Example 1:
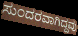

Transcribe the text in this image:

ಸುಂದರವಾಗಿದ್ದವು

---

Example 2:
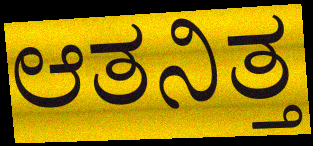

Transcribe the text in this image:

ಆತನಿತ್ತ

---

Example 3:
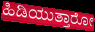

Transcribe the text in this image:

ಹಿಡಿಯುತ್ತಾರೋ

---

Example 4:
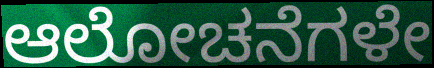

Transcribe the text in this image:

ಆಲೋಚನೆಗಳೇ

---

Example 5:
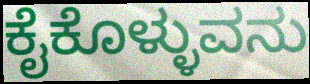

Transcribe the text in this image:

ಕೈಕೊಳ್ಳುವನು